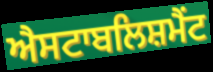
ਐਸਟਾਬਲਿਸ਼ਮੈਂਟ